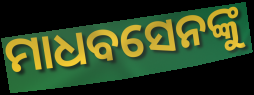
ମାଧବସେନଙ୍କୁ